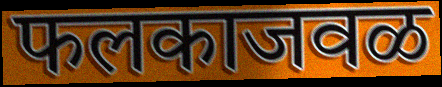
फलकाजवळ